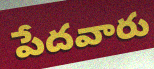
పేదవారు